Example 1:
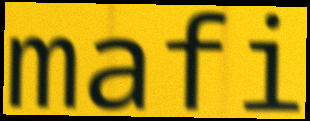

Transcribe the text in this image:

mafi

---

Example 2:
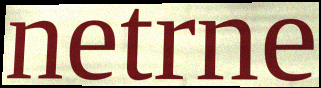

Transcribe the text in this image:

netrne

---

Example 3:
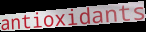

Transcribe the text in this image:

antioxidants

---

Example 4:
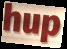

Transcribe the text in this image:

hup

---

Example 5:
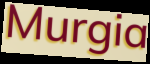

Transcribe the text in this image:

Murgia